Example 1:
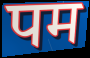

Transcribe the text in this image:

पम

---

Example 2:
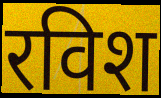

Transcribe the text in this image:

रविश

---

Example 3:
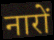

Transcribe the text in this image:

नारों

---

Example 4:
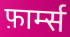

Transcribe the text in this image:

फ़ार्म्स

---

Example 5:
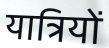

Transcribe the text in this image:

यात्रियों